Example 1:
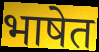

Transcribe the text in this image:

भाषेत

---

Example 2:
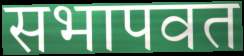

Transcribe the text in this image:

सभापवत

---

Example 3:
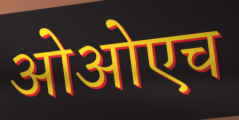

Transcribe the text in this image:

ओओएच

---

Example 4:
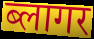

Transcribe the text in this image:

ब्लागर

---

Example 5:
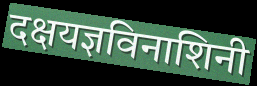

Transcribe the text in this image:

दक्षयज्ञविनाशिनी